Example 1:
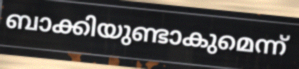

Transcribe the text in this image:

ബാക്കിയുണ്ടാകുമെന്ന്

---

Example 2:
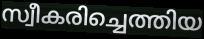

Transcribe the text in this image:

സ്വീകരിച്ചെത്തിയ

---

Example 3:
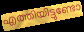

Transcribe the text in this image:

എത്തിയിട്ടുണ്ടോ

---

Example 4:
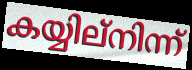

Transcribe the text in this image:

കയ്യില്നിന്ന്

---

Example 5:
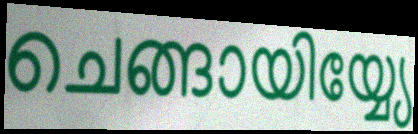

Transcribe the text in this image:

ചെങ്ങായിയ്യ്യേ